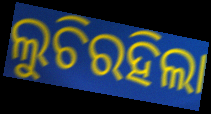
ଲୁଚିରହିଲା